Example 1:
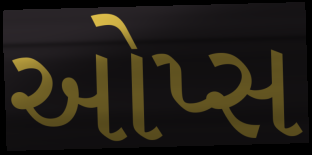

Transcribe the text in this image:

ઓપ્સ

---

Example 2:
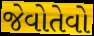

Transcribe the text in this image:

જેવોતેવો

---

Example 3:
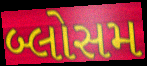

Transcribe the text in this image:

બ્લોસમ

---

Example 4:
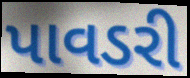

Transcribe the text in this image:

પાવડરી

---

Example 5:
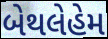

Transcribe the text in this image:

બેથલેહેમ